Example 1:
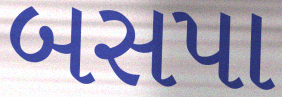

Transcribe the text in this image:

બસપા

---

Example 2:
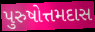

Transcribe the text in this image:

પુરુષોત્તમદાસ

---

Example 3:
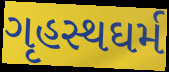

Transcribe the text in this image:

ગૃહસ્થઘર્મ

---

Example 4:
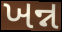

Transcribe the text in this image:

ખન્ન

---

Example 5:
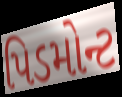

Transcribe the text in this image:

પિડમોન્ટ